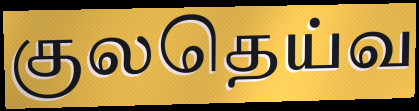
குலதெய்வ